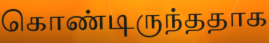
கொண்டிருந்ததாக